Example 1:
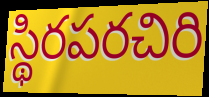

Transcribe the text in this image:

స్థిరపరచిరి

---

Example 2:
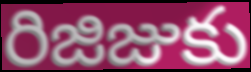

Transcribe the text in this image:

రిజిజుకు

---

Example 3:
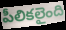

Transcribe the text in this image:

పీలికలైంది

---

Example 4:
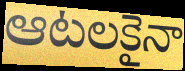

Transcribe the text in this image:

ఆటలకైనా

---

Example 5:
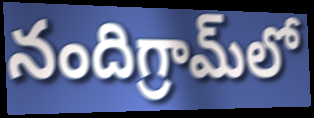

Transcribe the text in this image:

నందిగ్రామ్‌లో